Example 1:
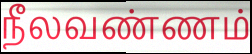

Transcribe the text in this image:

நீலவண்ணம்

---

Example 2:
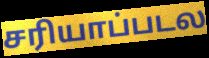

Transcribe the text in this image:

சரியாப்படல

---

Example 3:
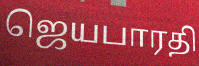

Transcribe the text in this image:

ஜெயபாரதி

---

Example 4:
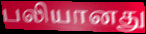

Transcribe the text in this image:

பலியானது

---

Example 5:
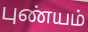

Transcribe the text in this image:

புண்யம்